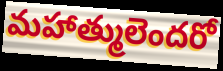
మహాత్ములెందరో